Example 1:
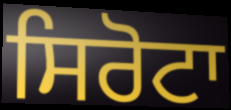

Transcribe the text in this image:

ਸਿਰੋਟਾ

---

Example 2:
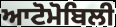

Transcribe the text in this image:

ਆਟੋਮੋਬਿਲੀ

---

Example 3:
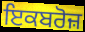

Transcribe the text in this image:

ਇਕਬਰੋਜ਼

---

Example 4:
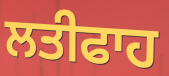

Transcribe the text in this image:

ਲਤੀਫਾਹ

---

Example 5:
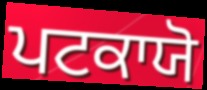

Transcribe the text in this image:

ਪਟਕਾਯੋ